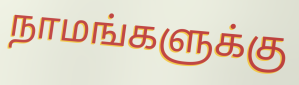
நாமங்களுக்கு